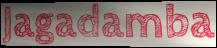
Jagadamba